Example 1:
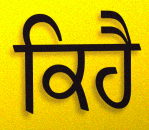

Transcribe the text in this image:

ਕਿਹੈ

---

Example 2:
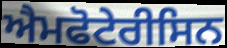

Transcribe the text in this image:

ਐਮਫੋਟੇਰੀਸਿਨ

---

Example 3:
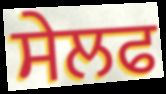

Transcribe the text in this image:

ਸੇਲਫ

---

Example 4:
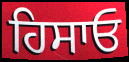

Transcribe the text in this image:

ਹਿਸਾਓ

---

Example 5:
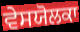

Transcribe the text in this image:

ਵੇਸਯੋਲਕਾ